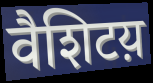
वैशिटय़